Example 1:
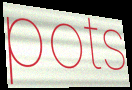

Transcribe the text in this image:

pots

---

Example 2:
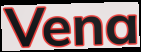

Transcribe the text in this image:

Vena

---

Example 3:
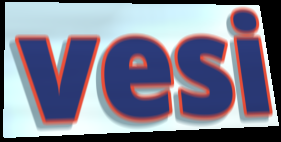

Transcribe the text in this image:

vesi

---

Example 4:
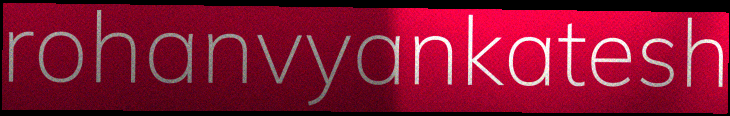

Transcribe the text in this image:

rohanvyankatesh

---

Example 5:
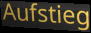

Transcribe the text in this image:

Aufstieg